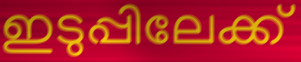
ഇടുപ്പിലേക്ക്